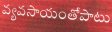
వ్యవసాయంతోపాటు